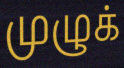
முழுக்